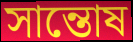
সান্তোষ